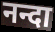
नन्दा